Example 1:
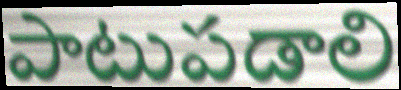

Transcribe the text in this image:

పాటుపడాలి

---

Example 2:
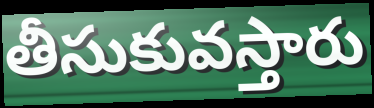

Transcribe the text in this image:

తీసుకువస్తారు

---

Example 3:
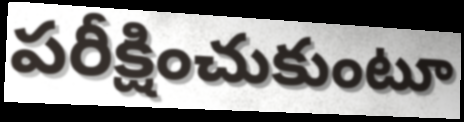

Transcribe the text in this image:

పరీక్షించుకుంటూ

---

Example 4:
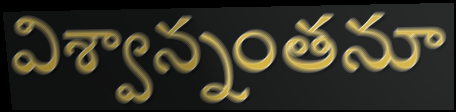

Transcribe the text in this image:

విశ్వాన్నంతనూ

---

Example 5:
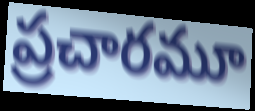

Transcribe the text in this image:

ప్రచారమూ